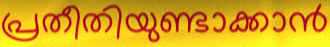
പ്രതീതിയുണ്ടാക്കാൻ